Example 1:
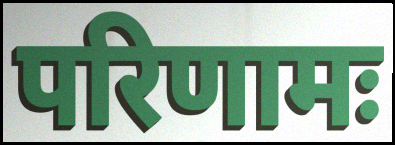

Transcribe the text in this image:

परिणामः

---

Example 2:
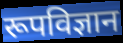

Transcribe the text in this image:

रूपविज्ञान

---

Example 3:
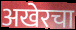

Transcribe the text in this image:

अखेरचा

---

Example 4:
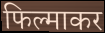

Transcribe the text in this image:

फिल्माकर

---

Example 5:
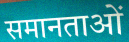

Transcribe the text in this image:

समानताओं